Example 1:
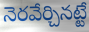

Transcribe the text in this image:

నెరవేర్చినట్టే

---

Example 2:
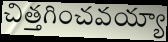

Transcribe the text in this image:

చిత్తగించవయ్యా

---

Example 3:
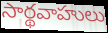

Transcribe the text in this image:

సార్థవాహులు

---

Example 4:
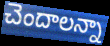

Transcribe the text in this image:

చెందాలన్నా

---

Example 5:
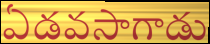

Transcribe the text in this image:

ఏడవసాగాడు